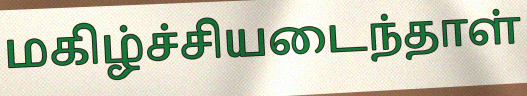
மகிழ்ச்சியடைந்தாள்